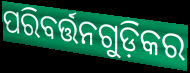
ପରିବର୍ତ୍ତନଗୁଡ଼ିକର